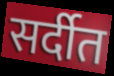
सर्दीत